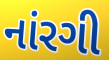
નાંરગી